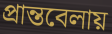
প্রান্তবেলায়